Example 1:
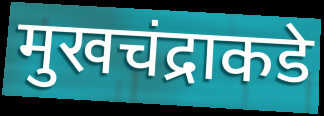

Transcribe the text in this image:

मुखचंद्राकडे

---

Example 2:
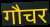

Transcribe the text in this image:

गौचर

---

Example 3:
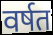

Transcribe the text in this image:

वर्षत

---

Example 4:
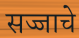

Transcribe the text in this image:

सज्जाचे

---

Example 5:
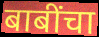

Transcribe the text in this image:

बाबींचा